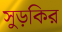
সুড়কির